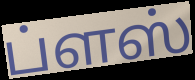
ப்ளஸ்